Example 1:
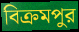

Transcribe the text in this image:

বিক্রমপুর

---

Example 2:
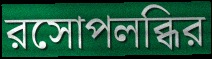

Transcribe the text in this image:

রসোপলব্ধির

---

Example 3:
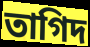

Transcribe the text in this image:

তাগিদ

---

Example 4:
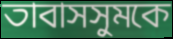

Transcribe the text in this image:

তাবাসসুমকে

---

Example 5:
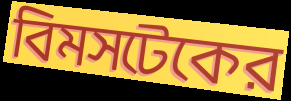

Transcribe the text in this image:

বিমসটেকের